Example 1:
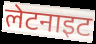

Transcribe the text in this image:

लेटनाइट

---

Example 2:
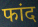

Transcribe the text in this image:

फांद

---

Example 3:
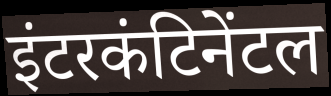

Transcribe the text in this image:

इंटरकंटिनेंटल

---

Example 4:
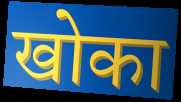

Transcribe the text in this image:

खोका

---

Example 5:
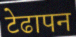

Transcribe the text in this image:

टेढापन